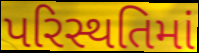
પરિસ્થતિમાં